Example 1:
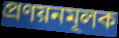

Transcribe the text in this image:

প্রণয়নমূলক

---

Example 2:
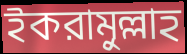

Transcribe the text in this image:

ইকরামুল্লাহ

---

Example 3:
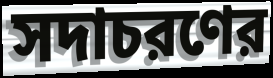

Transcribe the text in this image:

সদাচরণের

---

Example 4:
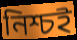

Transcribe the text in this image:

নিশ্চই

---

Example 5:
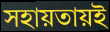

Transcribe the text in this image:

সহায়তায়ই